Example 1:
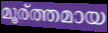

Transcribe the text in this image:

മൂര്ത്തമായ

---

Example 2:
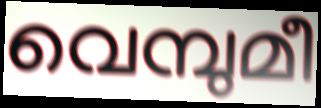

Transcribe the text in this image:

വെമ്പുമീ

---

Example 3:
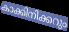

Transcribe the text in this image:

കാക്കിനിക്കറും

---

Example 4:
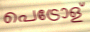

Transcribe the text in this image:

പെട്രോള്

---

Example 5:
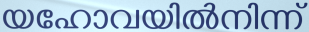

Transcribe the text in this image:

യഹോവയിൽനിന്ന്